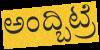
ಅಂದ್ಬಿಟ್ರೆ